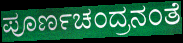
ಪೂರ್ಣಚಂದ್ರನಂತೆ